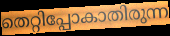
തെറ്റിപ്പോകാതിരുന്ന